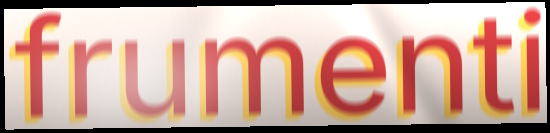
frumenti